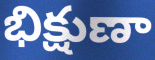
భిక్షుణా